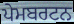
ਪੇਮਬਰਟਨ